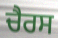
ਚੈਰਸ